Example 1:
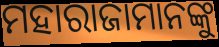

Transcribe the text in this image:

ମହାରାଜାମାନଙ୍କୁ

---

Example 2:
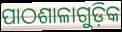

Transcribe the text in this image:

ପାଠଶାଳାଗୁଡ଼ିକ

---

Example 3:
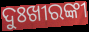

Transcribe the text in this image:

ଦୁଃଖୀରଙ୍କୀ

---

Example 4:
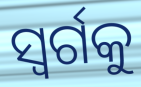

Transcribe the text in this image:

ସ୍ୱର୍ଗକୁ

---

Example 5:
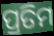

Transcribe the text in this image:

ପ୍ରତିମ